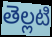
తెల్లటి